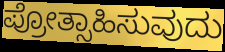
ಪ್ರೋತ್ಸಾಹಿಸುವುದು